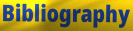
Bibliography